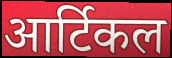
आर्टिकल